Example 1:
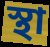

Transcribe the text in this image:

স্থা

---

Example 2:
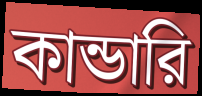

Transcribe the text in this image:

কান্ডারি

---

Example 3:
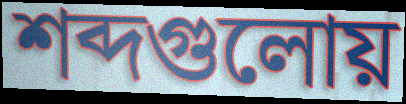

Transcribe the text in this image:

শব্দগুলোয়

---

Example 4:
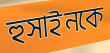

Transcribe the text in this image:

হুসাইনকে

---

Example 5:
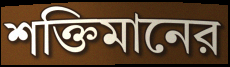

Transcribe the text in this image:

শক্তিমানের